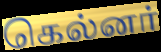
கெல்னர்